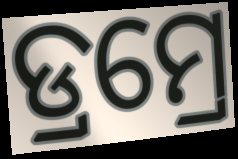
ଡ୍ରମ୍ରେ